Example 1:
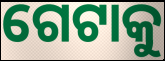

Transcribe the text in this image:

ଗେଟାକୁ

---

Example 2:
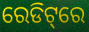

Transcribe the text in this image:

ରେଡିଟ୍‌ରେ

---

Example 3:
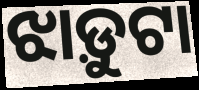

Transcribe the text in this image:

ଝାଡ଼ୁଟା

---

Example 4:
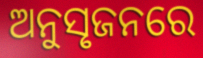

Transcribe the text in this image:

ଅନୁସୃଜନରେ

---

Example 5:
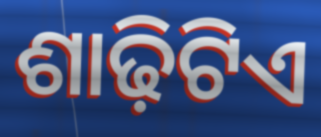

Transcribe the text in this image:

ଶାଢ଼ିଟିଏ